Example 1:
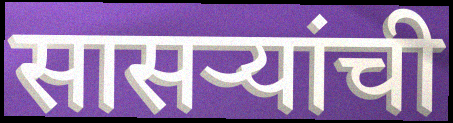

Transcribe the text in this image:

सासऱ्यांची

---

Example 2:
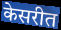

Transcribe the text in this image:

केसरीत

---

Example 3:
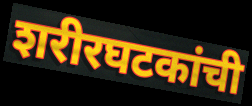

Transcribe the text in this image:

शरीरघटकांची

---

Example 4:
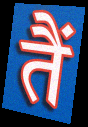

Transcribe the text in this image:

तैं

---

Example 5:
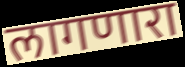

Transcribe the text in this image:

लागणारा